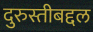
दुरुस्तीबद्दल